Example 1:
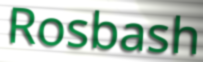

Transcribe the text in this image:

Rosbash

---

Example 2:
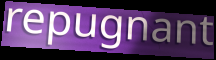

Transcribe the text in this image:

repugnant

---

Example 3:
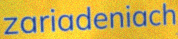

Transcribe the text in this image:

zariadeniach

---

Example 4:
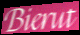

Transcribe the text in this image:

Bierut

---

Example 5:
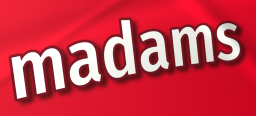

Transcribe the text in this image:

madams